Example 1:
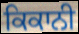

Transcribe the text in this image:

ਕਿਕਾਨੀ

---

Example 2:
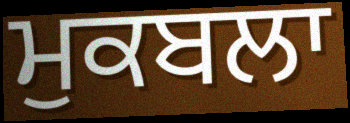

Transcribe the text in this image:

ਮੁਕਬਲਾ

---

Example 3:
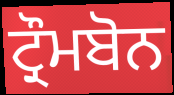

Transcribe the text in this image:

ਟ੍ਰੌਮਬੋਨ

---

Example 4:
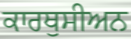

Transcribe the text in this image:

ਕਾਰਥੁਸੀਅਨ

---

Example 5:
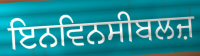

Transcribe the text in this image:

ਇਨਵਿਨਸੀਬਲਜ਼